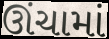
ઊંચામાં